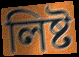
লিষ্ট